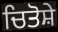
ਚਿਤੋਸ਼ੇ